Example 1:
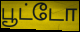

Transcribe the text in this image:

பூட்டோ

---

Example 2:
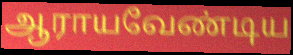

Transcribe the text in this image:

ஆராயவேண்டிய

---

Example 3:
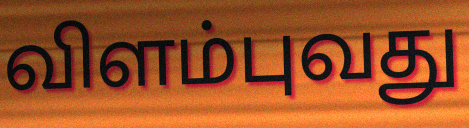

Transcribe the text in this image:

விளம்புவது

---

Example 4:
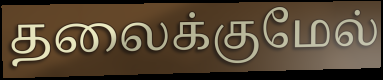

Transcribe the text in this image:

தலைக்குமேல்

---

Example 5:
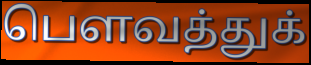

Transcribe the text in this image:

பௌவத்துக்